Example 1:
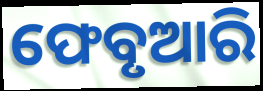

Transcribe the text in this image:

ଫେବୃଆରି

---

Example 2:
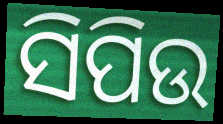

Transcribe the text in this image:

ସିପିଉ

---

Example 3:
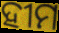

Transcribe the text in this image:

ହୀମ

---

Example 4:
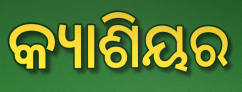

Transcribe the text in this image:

କ୍ୟାଶିୟର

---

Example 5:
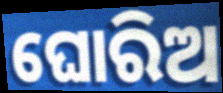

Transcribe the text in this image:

ଘୋରିଅ